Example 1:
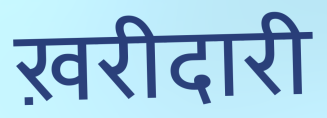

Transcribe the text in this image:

ख़रीदारी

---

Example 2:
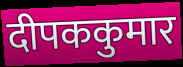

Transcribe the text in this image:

दीपककुमार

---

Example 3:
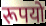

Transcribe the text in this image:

रूपयो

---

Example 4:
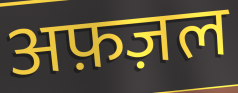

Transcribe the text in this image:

अफ़ज़ल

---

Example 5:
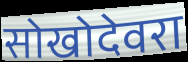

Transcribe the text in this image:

सोखोदेवरा